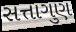
સત્તાગુણ